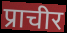
प्राचीर